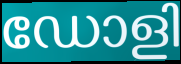
ഡോളി